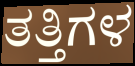
ತತ್ತಿಗಳ